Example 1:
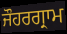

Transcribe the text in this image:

ਜੌਹਰਗ੍ਰਾਮ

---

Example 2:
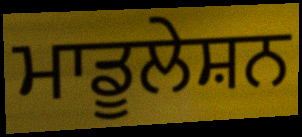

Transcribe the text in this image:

ਮਾਡੂਲੇਸ਼ਨ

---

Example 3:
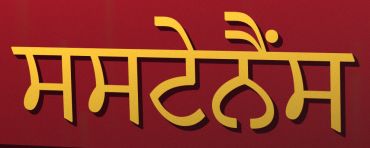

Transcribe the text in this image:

ਸਸਟੇਨੈਂਸ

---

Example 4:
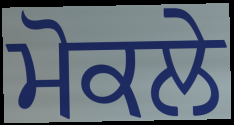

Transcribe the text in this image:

ਮੋਕਲੇ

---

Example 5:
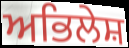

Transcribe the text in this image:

ਅਭਿਲੇਸ਼